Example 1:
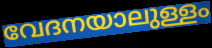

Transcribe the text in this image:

വേദനയാലുള്ളം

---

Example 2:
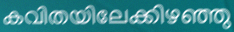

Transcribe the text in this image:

കവിതയിലേക്കിഴഞ്ഞു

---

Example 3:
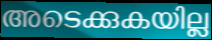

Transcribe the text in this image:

അടെക്കുകയില്ല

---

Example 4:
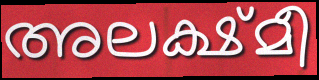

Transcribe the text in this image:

അലക്ഷ്മീ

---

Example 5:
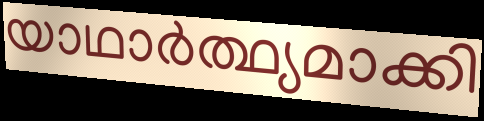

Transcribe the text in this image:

യാഥാർത്ഥ്യമാക്കി